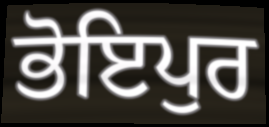
ਭੋਇਪੁਰ